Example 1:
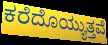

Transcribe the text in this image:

ಕರೆದೊಯ್ಯುತ್ತವೆ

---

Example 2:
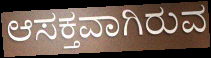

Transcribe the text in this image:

ಆಸಕ್ತವಾಗಿರುವ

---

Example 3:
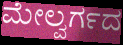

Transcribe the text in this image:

ಮೇಲ್ವರ್ಗದ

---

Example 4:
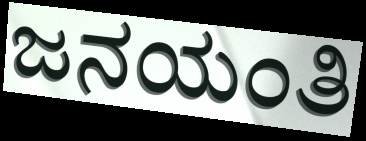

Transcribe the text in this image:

ಜನಯಂತಿ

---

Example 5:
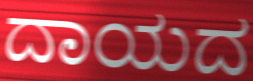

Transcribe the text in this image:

ದಾಯದ